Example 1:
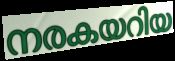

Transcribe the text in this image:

നരകയറിയ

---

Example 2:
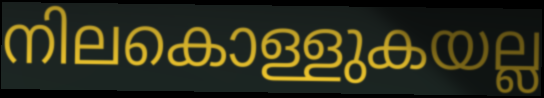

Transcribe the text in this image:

നിലകൊള്ളുകയല്ല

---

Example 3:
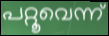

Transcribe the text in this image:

പറ്റൂവെന്ന്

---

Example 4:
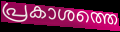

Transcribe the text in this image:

പ്രകാശത്തെ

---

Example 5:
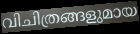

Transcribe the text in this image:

വിചിത്രങ്ങളുമായ